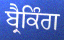
ਬ੍ਰੈਕਿੰਗ